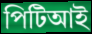
পিটিআই